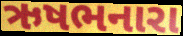
ઋષભનારા